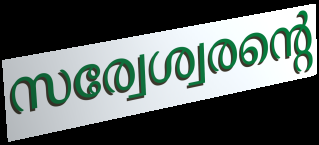
സര്വേശ്വരന്റെ